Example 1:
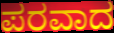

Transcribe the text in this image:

ಪರವಾದ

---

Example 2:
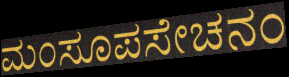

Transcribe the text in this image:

ಮಂಸೂಪಸೇಚನಂ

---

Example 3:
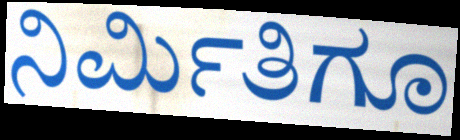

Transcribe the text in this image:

ನಿರ್ಮಿತಿಗೂ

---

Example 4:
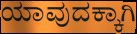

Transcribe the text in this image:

ಯಾವುದಕ್ಕಾಗಿ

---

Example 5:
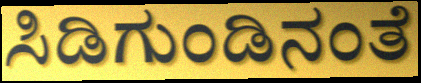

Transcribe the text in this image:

ಸಿಡಿಗುಂಡಿನಂತೆ